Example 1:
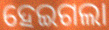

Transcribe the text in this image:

ହେଇଗଲା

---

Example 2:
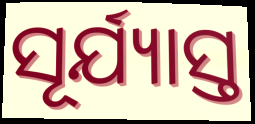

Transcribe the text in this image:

ସୂର୍ଯ୍ୟାସ୍ତ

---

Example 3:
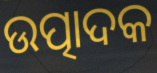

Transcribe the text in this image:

ଉତ୍ପାଦକ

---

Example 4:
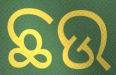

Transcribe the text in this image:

ଛଉ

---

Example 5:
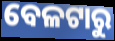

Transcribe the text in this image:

ବେଳଟାରୁ